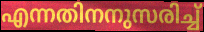
എന്നതിനനുസരിച്ച്